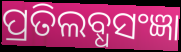
ପ୍ରତିଲବ୍ଧସଂଜ୍ଞା